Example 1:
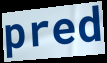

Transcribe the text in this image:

pred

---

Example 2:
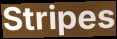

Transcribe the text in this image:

Stripes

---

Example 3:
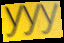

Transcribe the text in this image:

yyy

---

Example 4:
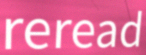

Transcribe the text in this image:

reread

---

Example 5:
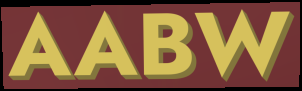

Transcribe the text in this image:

AABW